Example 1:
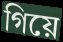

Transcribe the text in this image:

গিয়ে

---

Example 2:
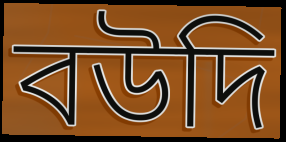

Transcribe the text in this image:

বউদি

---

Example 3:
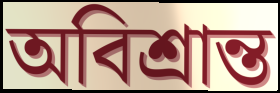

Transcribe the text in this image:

অবিশ্রান্ত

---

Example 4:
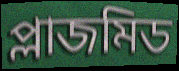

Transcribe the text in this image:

প্লাজমিড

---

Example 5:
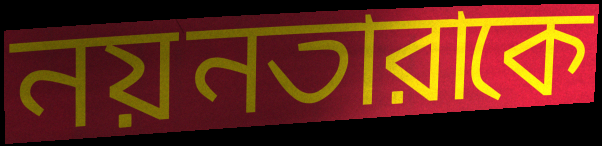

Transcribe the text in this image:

নয়নতারাকে